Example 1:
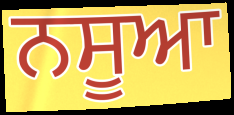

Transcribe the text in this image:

ਨਸੂਆ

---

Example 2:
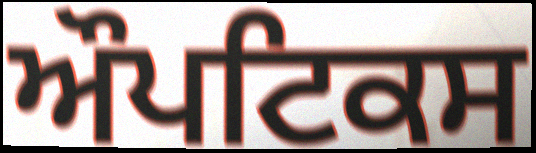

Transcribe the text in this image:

ਔਪਟਿਕਸ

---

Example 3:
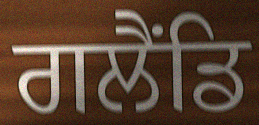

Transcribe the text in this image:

ਗਲੈਂਡਿ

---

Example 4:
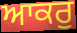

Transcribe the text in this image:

ਆਕਰੁ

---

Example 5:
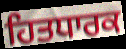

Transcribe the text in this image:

ਹਿਤਧਾਰਕ